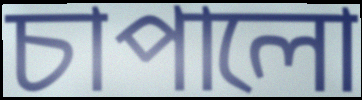
চাপালো